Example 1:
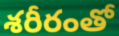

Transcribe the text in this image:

శరీరంతో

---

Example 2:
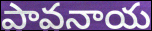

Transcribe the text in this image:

పావనాయ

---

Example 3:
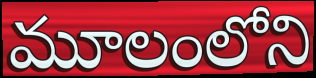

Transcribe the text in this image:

మూలంలోని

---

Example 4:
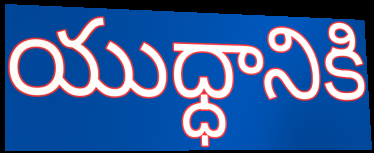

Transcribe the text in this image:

యుధ్ధానికి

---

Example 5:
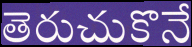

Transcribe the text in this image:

తెరుచుకొనే